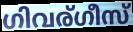
ഗിവര്ഗീസ്